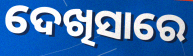
ଦେଖିସାରେ